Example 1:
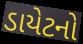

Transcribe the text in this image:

ડાયેટનો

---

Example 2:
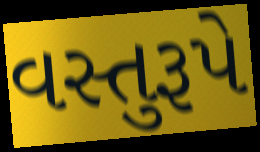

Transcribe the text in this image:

વસ્તુરૂપે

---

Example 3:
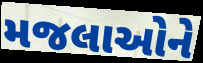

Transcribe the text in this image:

મજલાઓને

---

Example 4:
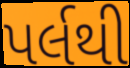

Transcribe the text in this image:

પર્લથી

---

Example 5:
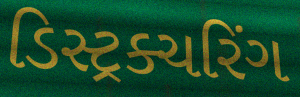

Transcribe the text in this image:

ડિસ્ટ્રક્ચરિંગ